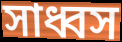
সাধ্বস